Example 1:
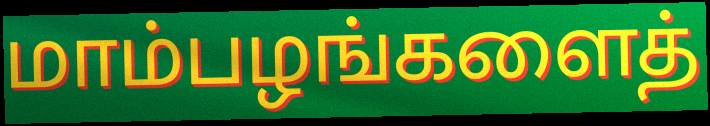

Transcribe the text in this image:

மாம்பழங்களைத்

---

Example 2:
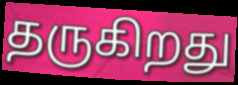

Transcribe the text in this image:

தருகிறது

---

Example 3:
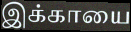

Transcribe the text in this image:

இக்காயை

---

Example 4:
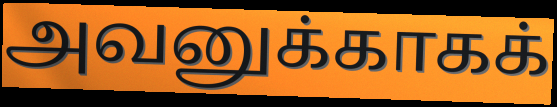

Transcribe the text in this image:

அவனுக்காகக்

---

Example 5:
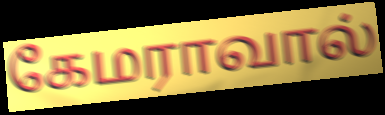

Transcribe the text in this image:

கேமராவால்